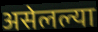
असेलल्या